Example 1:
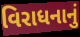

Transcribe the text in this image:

વિરાધનાનું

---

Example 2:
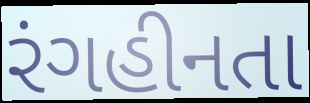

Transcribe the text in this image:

રંગહીનતા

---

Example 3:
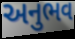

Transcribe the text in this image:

અનુભવ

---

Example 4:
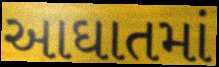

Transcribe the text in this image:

આઘાતમાં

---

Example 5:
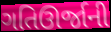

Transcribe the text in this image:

ગતિઊર્જાની